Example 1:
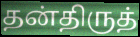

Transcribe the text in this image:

தன்திருத்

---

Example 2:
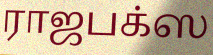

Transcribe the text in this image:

ராஜபக்ஸ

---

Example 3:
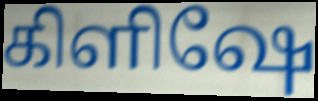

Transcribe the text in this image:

கிளிஷே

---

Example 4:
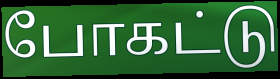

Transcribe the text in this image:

போகட்டு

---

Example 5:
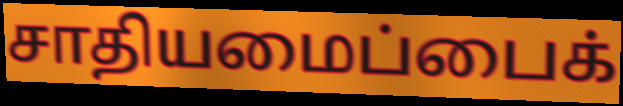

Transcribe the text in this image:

சாதியமைப்பைக்